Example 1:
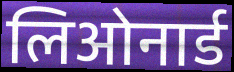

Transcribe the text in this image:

लिओनार्ड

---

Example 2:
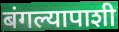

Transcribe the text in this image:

बंगल्यापाशी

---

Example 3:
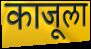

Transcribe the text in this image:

काजूला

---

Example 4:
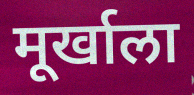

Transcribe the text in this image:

मूर्खाला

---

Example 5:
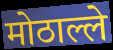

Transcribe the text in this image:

मोठाल्ले